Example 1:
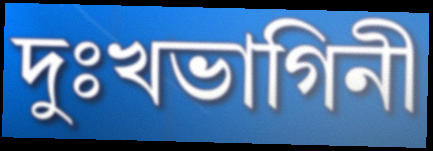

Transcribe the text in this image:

দুঃখভাগিনী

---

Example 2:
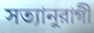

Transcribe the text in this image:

সত্যানুরাগী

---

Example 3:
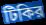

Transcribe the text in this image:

টিকির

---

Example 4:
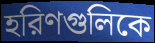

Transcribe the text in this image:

হরিণগুলিকে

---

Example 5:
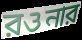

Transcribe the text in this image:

রওনার